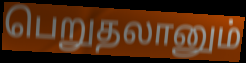
பெறுதலானும்